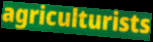
agriculturists